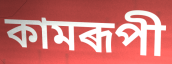
কামৰূপী